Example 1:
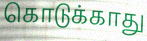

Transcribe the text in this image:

கொடுக்காது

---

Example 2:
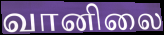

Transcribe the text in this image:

வானிலை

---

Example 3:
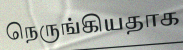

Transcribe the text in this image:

நெருங்கியதாக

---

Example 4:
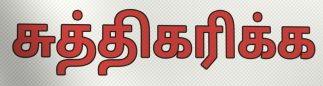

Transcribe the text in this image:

சுத்திகரிக்க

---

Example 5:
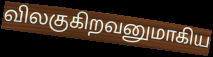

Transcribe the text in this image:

விலகுகிறவனுமாகிய